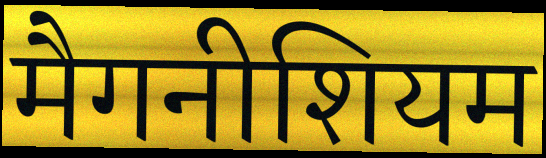
मैगनीशियम